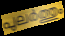
പുലർത്തും